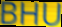
BHU